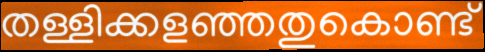
തള്ളിക്കളഞ്ഞതുകൊണ്ട്